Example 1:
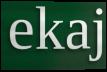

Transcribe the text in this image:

ekaj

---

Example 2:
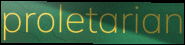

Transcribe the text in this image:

proletarian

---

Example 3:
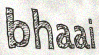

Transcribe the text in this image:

bhaai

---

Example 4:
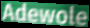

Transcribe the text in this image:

Adewole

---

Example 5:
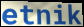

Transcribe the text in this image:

etnik